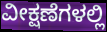
ವೀಕ್ಷಣೆಗಳಲ್ಲಿ